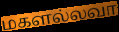
மகளல்லவா